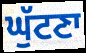
ਘੁੱਟਣਾ